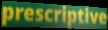
prescriptive